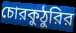
চোরকুঠুরির